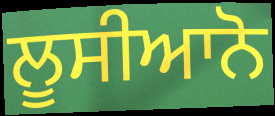
ਲੂਸੀਆਨੋ